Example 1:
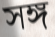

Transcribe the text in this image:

সঙ্গ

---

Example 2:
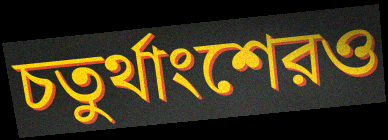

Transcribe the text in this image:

চতুর্থাংশেরও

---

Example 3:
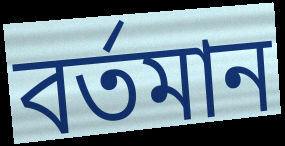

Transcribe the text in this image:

বর্তমান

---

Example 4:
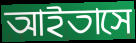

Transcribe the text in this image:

আইতাসে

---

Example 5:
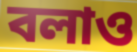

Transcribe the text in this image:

বলাও